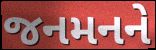
જનમનને